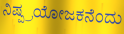
ನಿಷ್ಪ್ರಯೋಜಕನೆಂದು